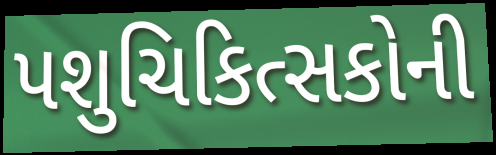
પશુચિકિત્સકોની